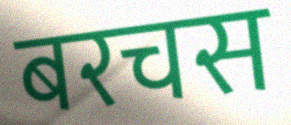
बरचस